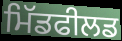
ਮਿੱਡਫੀਲਡ